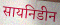
सायनिडीन